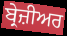
ਬ੍ਰੇਜ਼ੀਅਰ